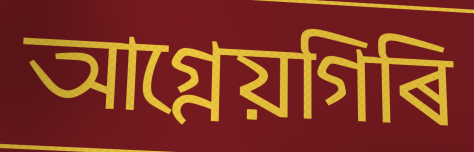
আগ্নেয়গিৰি